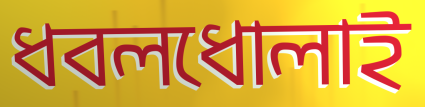
ধবলধোলাই